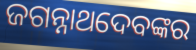
ଜଗନ୍ନାଥଦେବଙ୍କର